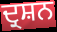
ਦ੍ਰਸ਼ਨ